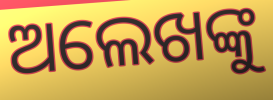
ଅଲେଖଙ୍କୁ